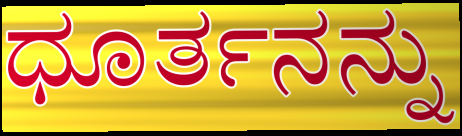
ಧೂರ್ತನನ್ನು